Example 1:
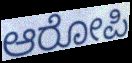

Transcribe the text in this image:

ಆರೋಪಿ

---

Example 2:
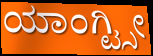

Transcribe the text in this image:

ಯಾಂಗ್ಟ್ಸೀ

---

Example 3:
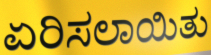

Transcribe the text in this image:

ಏರಿಸಲಾಯಿತು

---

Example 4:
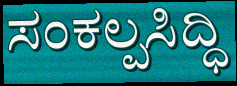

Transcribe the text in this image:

ಸಂಕಲ್ಪಸಿದ್ಧಿ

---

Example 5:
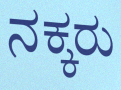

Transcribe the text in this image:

ನಕ್ಕರು